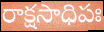
రాక్షసాధిపః